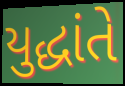
યુદ્ધાંતે